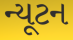
ન્યૂટન